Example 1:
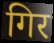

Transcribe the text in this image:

गिर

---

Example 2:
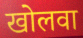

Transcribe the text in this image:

खोलवा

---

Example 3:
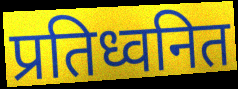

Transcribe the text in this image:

प्रतिध्वनित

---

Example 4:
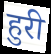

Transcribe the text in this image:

हुरी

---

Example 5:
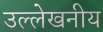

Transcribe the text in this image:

उल्लेखनीय